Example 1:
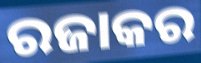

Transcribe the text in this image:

ରଜାକର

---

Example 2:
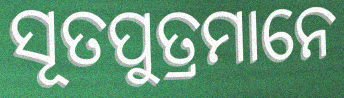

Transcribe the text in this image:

ସୂତପୁତ୍ରମାନେ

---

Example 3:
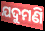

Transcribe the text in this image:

ଯଦୁମଣି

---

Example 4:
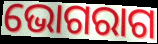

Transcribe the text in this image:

ଭୋଗରାଗ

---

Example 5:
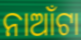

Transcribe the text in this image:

ନାଆଁଟା